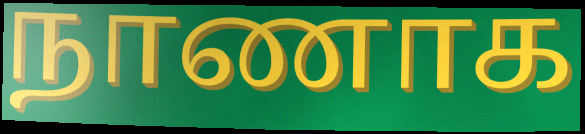
நாணாக